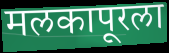
मलकापूरला